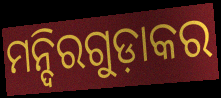
ମନ୍ଦିରଗୁଡ଼ାକର